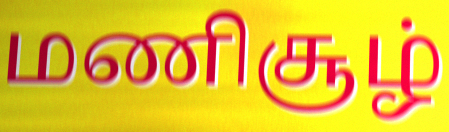
மணிசூழ்